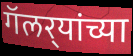
गॅलर्‍यांच्या